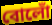
বোলোঁ